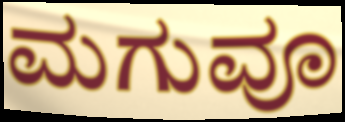
ಮಗುವೂ